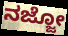
ನಜ್ಜೋ